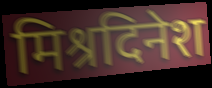
मिश्रदिनेश